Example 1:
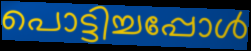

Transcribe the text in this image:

പൊട്ടിച്ചപ്പോൾ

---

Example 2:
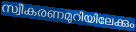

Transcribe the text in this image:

സ്വീകരണമുറിയിലേക്കും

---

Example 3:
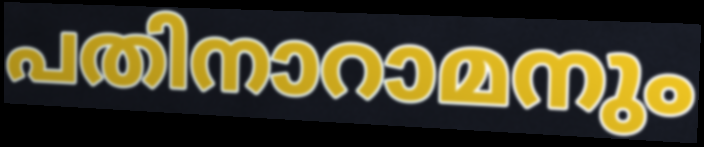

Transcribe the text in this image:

പതിനാറാമനും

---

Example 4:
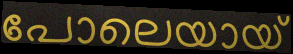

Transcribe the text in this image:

പോലെയായ്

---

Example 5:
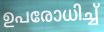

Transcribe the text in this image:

ഉപരോധിച്ച്